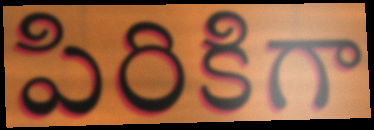
పిరికిగా